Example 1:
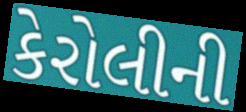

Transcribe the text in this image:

કેરોલીની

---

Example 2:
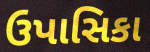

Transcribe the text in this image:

ઉપાસિકા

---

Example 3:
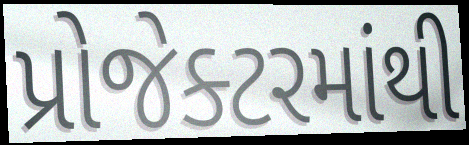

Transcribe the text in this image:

પ્રોજેક્ટરમાંથી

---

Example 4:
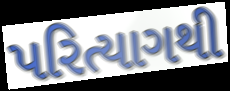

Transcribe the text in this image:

પરિત્યાગથી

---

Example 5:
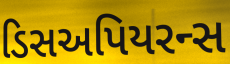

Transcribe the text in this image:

ડિસઅપિયરન્સ